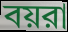
বয়রা